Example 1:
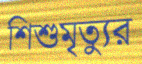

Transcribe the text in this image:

শিশুমৃত্যুর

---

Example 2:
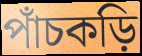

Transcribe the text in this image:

পাঁচকড়ি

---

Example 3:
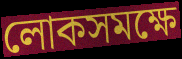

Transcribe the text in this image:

লোকসমক্ষে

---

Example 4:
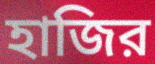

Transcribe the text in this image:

হাজির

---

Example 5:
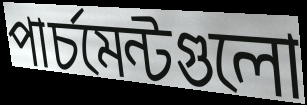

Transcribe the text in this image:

পার্চমেন্টগুলো